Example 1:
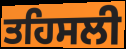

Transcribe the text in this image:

ਤਹਿਸਲੀ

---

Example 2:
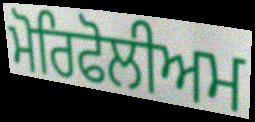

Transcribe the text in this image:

ਮੋਰਿਫੋਲੀਅਮ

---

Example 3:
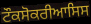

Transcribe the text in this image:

ਟੌਕਸੋਕਰੀਆਸਿਸ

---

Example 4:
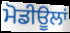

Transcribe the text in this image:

ਮੋਡੀਊਲਾਂ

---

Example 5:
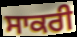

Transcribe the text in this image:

ਸਾਕਰੀ